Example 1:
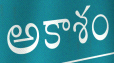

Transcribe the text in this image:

అకాశం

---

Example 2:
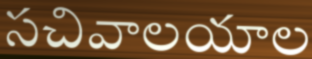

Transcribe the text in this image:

సచివాలయాల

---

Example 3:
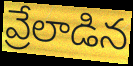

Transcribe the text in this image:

వ్రేలాడిన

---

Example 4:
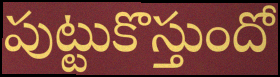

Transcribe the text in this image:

పుట్టుకొస్తుందో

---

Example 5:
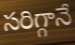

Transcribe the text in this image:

సరిగ్గానే